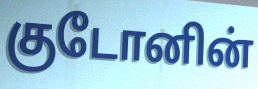
குடோனின்